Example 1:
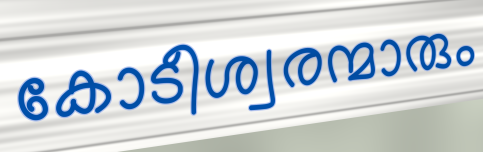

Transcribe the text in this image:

കോടീശ്വരന്മാരും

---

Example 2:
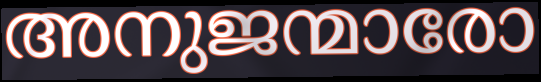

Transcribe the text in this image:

അനുജന്മാരോ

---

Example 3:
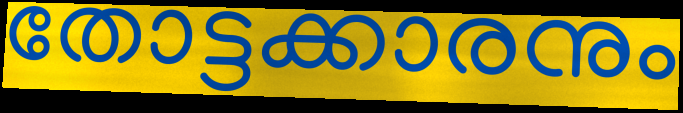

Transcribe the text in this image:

തോട്ടക്കാരനും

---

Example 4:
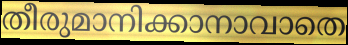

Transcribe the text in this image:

തീരുമാനിക്കാനാവാതെ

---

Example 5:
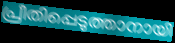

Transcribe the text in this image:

പ്രീതിപ്പെടുത്താനായി